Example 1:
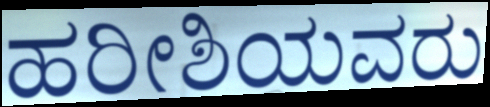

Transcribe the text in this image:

ಹರೀಶಿಯವರು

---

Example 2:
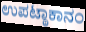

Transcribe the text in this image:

ಉಪಟ್ಠಾಕಾನಂ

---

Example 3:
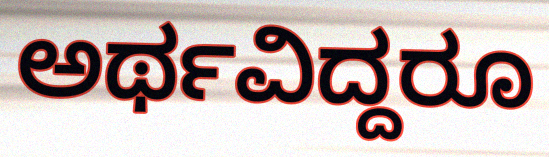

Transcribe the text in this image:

ಅರ್ಥವಿದ್ದರೂ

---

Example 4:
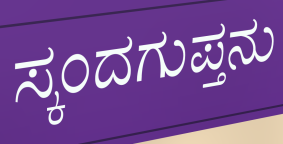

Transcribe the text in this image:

ಸ್ಕಂದಗುಪ್ತನು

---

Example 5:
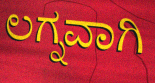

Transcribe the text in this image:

ಲಗ್ನವಾಗಿ